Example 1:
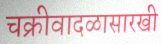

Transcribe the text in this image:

चक्रीवादळासारखी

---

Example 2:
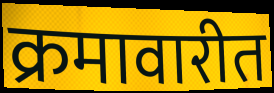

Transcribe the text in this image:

क्रमावारीत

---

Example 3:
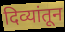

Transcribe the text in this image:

दिव्यांतून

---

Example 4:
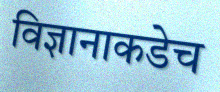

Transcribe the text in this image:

विज्ञानाकडेच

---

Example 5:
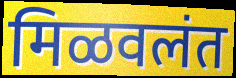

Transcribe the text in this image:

मिळवलंत